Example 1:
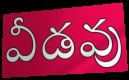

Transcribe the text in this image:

వీడవు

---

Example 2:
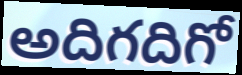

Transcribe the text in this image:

అదిగదిగో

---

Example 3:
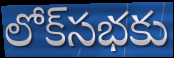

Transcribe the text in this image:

లోక్‌సభకు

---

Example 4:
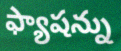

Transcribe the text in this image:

ఫ్యాషన్ను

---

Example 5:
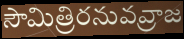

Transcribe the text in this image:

సౌమిత్రిరనువవ్రాజ